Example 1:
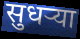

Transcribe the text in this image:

सुधर्‍या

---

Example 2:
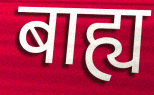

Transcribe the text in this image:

बाह्य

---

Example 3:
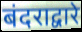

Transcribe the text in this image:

बंदराद्वारे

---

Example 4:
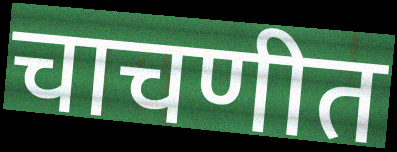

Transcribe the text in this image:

चाचणीत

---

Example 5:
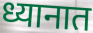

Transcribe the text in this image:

ध्यानात